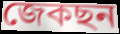
জেকছন